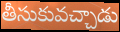
తీసుకువచ్చాడు